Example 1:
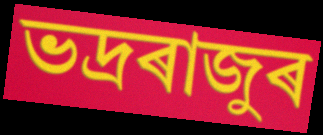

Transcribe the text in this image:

ভদ্ৰৰাজুৰ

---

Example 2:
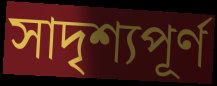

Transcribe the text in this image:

সাদৃশ্যপূৰ্ণ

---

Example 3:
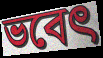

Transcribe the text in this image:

ভবেৎ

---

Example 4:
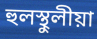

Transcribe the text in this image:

হুলস্থুলীয়া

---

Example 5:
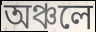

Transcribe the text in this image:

অঞ্চলে